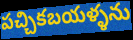
పచ్చికబయళ్ళను